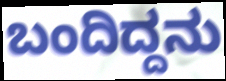
ಬಂದಿದ್ದನು